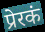
प्रेरकं